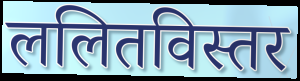
ललितविस्तर